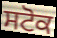
ਸਟੋਕ